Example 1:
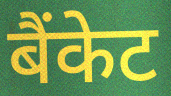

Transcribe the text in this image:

बैंकेट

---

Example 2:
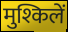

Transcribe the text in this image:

मुश्किलें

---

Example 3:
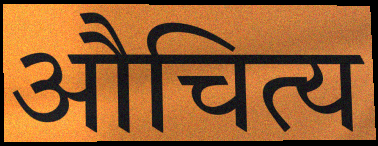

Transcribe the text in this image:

औचित्‍य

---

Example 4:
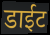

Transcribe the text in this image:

डाईट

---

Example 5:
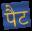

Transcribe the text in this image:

पैट